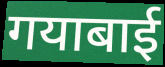
गयाबाई